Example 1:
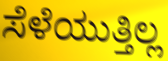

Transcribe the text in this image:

ಸೆಳೆಯುತ್ತಿಲ್ಲ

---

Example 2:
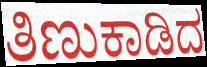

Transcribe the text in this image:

ತಿಣುಕಾಡಿದ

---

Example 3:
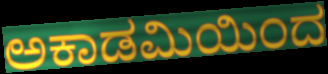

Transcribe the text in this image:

ಅಕಾಡಮಿಯಿಂದ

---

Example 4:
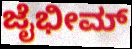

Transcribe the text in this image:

ಜೈಭೀಮ್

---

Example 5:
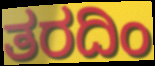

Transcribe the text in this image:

ತರದಿಂ